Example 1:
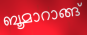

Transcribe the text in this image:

ബൂമാറാങ്ങ്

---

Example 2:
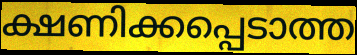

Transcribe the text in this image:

ക്ഷണിക്കപ്പെടാത്ത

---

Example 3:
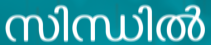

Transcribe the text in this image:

സിന്ധിൽ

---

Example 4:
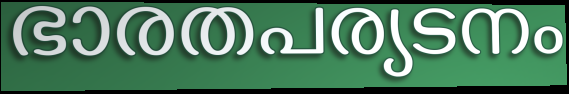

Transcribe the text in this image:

ഭാരതപര്യടനം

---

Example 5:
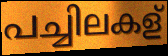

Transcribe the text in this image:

പച്ചിലകള്